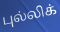
புல்லிக்